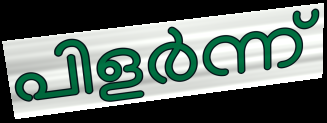
പിളർന്ന്